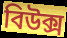
বিউক্স